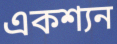
একশ্যন